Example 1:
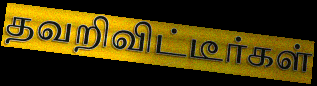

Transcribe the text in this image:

தவறிவிட்டீர்கள்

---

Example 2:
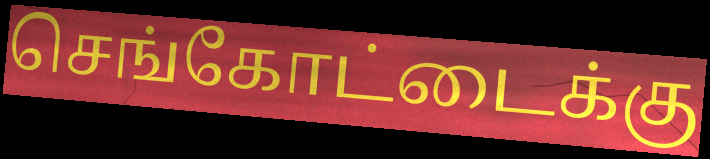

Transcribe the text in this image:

செங்கோட்டைக்கு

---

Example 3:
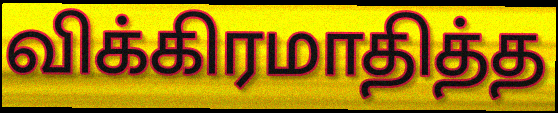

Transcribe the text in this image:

விக்கிரமாதித்த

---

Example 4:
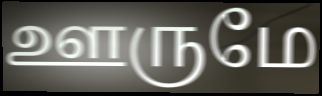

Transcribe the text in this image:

ஊருமே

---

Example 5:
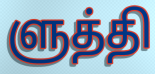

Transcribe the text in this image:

ளுத்தி